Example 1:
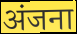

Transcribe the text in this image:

अंजना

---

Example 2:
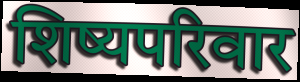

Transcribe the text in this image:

शिष्यपरिवार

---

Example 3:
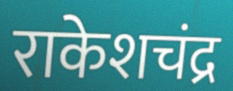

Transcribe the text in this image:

राकेशचंद्र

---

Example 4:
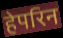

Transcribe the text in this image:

हेपरिन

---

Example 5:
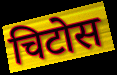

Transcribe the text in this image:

चिटोस